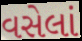
વસેલાં